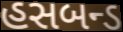
હસબન્ડ